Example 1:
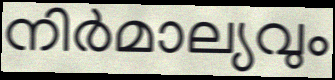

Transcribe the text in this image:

നിർമാല്യവും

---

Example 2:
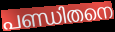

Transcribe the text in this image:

പണ്ഡിതനെ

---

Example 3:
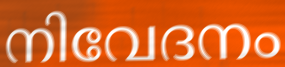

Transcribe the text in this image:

നിവേദനം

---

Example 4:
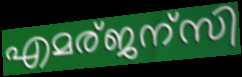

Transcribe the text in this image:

എമര്ജന്സി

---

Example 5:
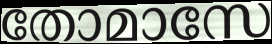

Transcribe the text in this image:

തോമാസേ